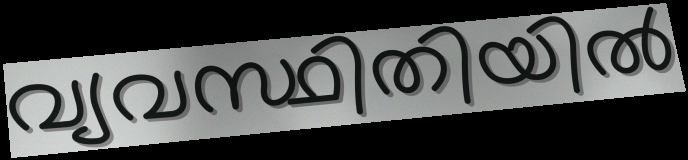
വ്യവസ്ഥിതിയിൽ